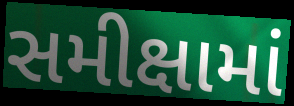
સમીક્ષામાં